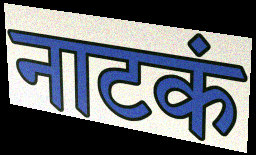
नाटकं